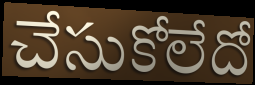
చేసుకోలేదో